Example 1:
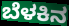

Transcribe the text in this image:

ಬೆಳಕಿನ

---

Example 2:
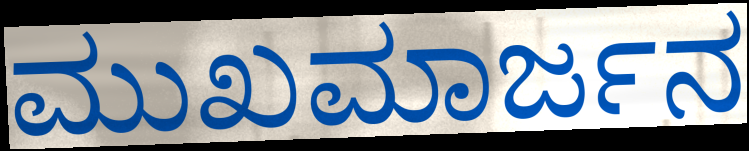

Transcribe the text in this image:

ಮುಖಮಾರ್ಜನ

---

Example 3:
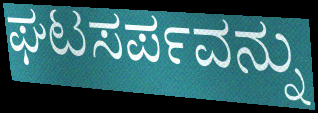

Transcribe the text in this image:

ಘಟಸರ್ಪವನ್ನು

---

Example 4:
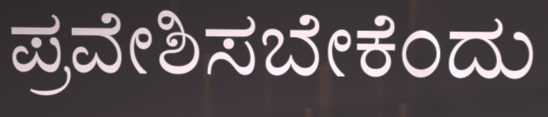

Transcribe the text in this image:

ಪ್ರವೇಶಿಸಬೇಕೆಂದು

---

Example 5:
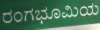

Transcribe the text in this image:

ರಂಗಭೂಮಿಯ